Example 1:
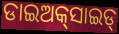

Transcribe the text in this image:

ଡାଇଅକ୍‌ସାଇଡ୍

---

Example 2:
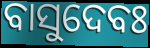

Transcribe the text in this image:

ବାସୁଦେବଃ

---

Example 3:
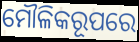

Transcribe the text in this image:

ମୌଳିକରୂପରେ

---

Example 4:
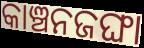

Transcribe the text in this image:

କାଞ୍ଚନଜଙ୍ଘା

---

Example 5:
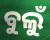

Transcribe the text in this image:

ବୁଲୁଁ